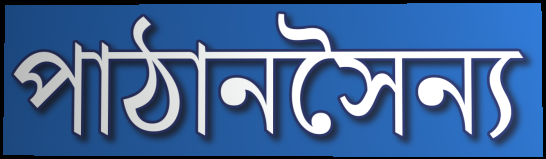
পাঠানসৈন্য